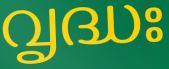
വൃദ്ധഃ